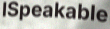
ISpeakable